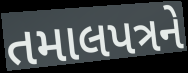
તમાલપત્રને